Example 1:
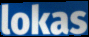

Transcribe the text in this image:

lokas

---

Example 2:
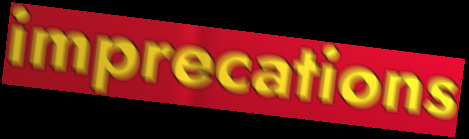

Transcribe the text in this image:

imprecations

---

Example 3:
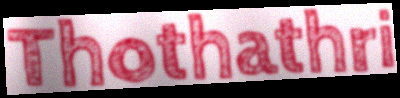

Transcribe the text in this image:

Thothathri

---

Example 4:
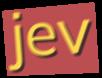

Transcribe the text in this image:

jev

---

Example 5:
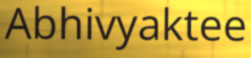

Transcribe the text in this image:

Abhivyaktee